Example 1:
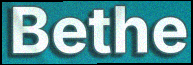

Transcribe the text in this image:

Bethe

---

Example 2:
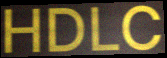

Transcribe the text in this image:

HDLC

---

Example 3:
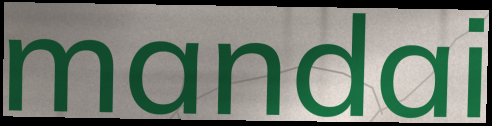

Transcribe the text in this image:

mandai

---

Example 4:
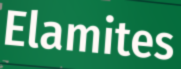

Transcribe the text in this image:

Elamites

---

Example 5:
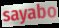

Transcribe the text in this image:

sayabo